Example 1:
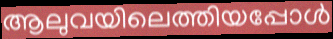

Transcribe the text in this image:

ആലുവയിലെത്തിയപ്പോൾ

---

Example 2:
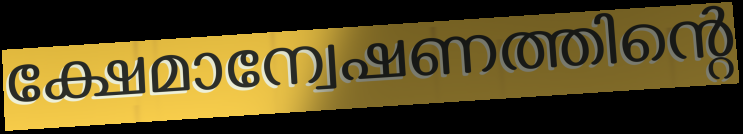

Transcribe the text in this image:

ക്ഷേമാന്വേഷണത്തിന്റെ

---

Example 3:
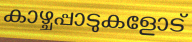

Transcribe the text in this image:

കാഴ്ചപ്പാടുകളോട്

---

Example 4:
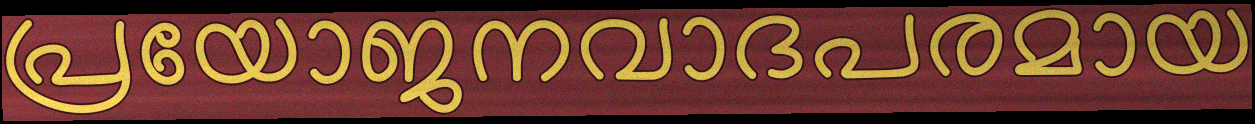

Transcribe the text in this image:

പ്രയോജനവാദപരമായ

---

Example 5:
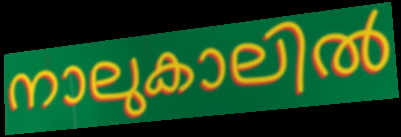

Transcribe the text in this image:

നാലുകാലിൽ